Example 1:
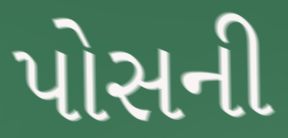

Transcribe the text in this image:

પોસની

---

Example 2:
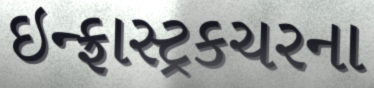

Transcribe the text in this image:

ઇન્ફ્રાસ્ટ્રકચરના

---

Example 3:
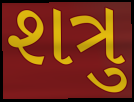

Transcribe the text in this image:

શત્રુ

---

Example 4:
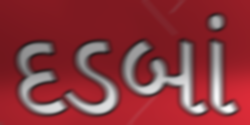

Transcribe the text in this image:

દડબાં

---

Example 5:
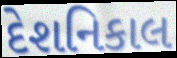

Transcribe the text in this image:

દેશનિકાલ